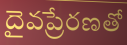
దైవప్రేరణతో